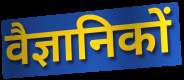
वैज्ञानिकों